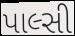
પાલ્સી